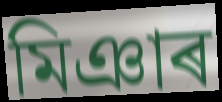
মিঞাৰ